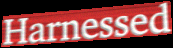
Harnessed